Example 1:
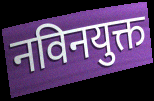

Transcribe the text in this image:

नविनयुक्त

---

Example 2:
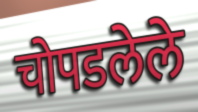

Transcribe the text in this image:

चोपडलेले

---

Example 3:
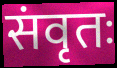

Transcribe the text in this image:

संवृतः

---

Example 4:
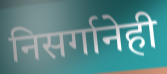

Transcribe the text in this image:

निसर्गानेही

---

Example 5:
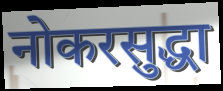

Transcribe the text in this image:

नोकरसुद्धा